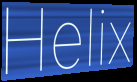
Helix